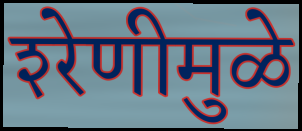
श्रेणीमुळे